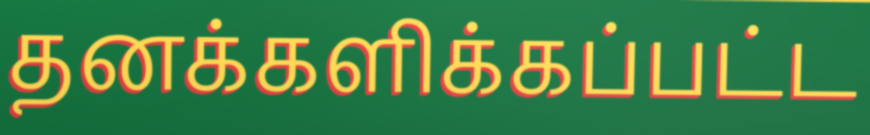
தனக்களிக்கப்பட்ட